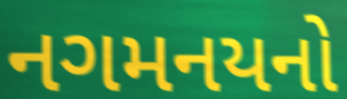
નગમનયનો